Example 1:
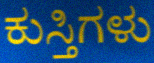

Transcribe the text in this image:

ಕುಸ್ತಿಗಳು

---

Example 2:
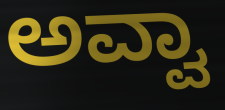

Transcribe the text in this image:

ಅವ್ವಾ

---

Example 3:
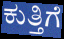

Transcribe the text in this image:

ಕುತ್ತಿಗೆ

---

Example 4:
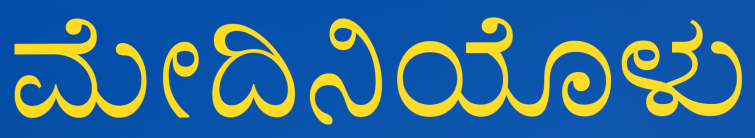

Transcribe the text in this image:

ಮೇದಿನಿಯೊಳು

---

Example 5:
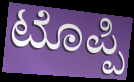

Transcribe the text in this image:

ಟೊಪ್ಪಿ